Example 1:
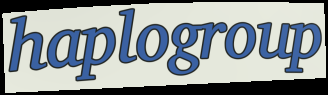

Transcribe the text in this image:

haplogroup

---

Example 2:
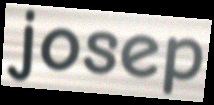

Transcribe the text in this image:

josep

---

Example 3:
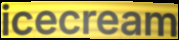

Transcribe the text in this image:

icecream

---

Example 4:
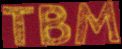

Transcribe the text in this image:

TBM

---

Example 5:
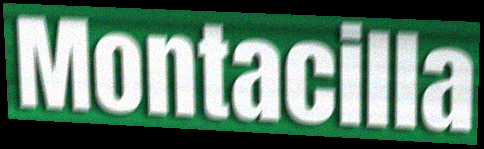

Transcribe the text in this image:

Montacilla